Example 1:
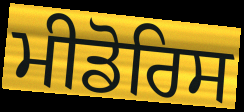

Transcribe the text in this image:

ਮੀਡੋਰਿਸ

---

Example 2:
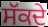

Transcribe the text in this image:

ਸੱਕਦੇ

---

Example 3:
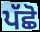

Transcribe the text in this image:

ਪੱਛੋ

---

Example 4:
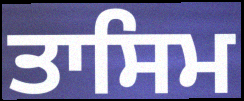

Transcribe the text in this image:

ਤਾਸਿਮ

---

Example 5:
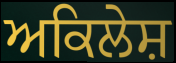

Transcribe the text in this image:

ਅਕਿਲੇਸ਼